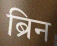
ब्रिन